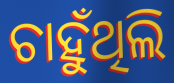
ଚାହୁଁଥିଲି